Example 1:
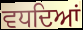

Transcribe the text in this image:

ਵਧਦਿਆਂ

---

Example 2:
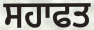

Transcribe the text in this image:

ਸਹਾਫਤ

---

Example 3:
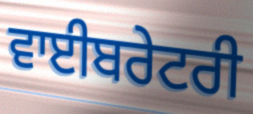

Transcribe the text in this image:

ਵਾਈਬਰੇਟਰੀ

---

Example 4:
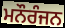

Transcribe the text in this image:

ਮਨੌਰੰਜਨ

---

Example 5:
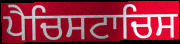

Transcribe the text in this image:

ਪੈਚਿਸਟਾਚਿਸ